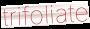
trifoliate